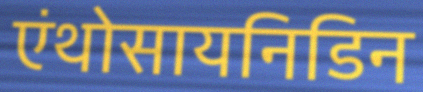
एंथोसायनिडिन